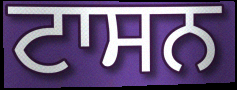
ਟਾਸਨ